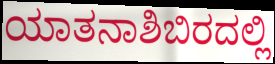
ಯಾತನಾಶಿಬಿರದಲ್ಲಿ